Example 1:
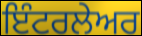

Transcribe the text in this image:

ਇੰਟਰਲੇਅਰ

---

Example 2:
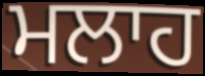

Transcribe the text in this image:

ਮਲਾਹ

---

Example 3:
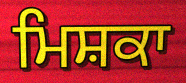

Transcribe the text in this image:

ਮਿਸ਼ਕਾ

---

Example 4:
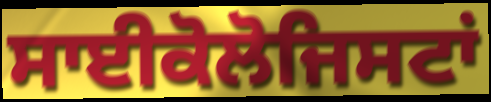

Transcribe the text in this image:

ਸਾਈਕੋਲੋਜਿਸਟਾਂ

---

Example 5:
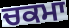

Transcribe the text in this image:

ਚਕਮਾ